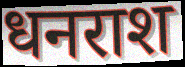
धनराश